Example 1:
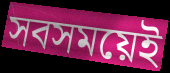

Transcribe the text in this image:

সবসময়েই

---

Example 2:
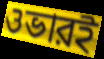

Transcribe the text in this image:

ওভারই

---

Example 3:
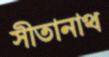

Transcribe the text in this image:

সীতানাথ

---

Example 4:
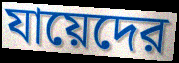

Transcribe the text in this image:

যায়েদের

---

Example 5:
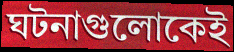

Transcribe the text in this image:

ঘটনাগুলোকেই